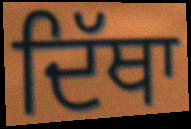
ਦਿੱਥਾ